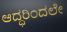
ಆದ್ಧರಿಂದಲೇ